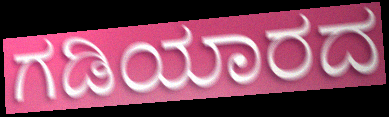
ಗಡಿಯಾರದ